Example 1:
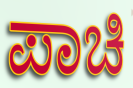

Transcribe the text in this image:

ಪಾಚಿ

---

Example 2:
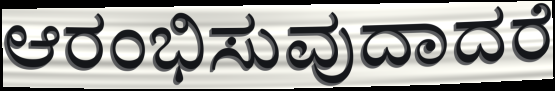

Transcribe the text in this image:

ಆರಂಭಿಸುವುದಾದರೆ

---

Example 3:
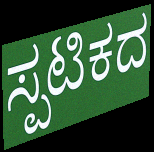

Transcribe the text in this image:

ಸ್ಪಟಿಕದ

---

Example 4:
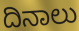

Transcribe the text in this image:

ದಿನಾಲು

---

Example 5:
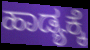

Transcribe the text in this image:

ಹಾಡ್ಯಕ್ಕೆ